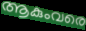
ആകുംവരെ